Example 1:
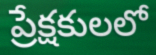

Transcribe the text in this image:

ప్రేక్షకులలో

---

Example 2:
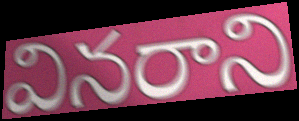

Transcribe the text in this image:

వినరాని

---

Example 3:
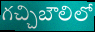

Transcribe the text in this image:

గచ్చిబౌలిలో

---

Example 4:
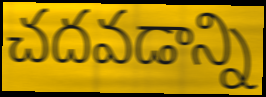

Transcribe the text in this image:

చదవడాన్ని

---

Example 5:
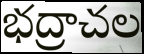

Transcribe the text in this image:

భద్రాచల